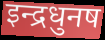
इन्द्रधुनष